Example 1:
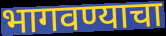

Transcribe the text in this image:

भागवण्याचा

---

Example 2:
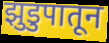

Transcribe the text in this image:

झुडुपातून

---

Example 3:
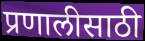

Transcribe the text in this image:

प्रणालीसाठी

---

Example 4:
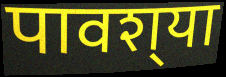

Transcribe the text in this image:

पावश्या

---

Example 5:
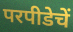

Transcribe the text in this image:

परपीडेचें